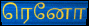
ரெனோ